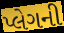
પ્લેગની